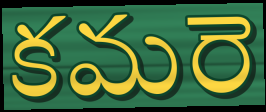
కమరె